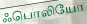
ஃபொலியோ